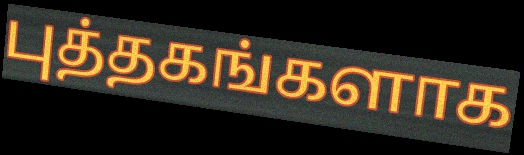
புத்தகங்களாக